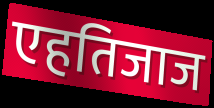
एहतिजाज